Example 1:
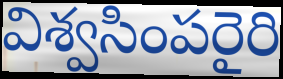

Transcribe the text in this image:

విశ్వసింపరైరి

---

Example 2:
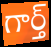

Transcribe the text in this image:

గార్త్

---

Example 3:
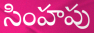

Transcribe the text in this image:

సింహపు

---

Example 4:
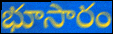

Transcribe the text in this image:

భూసారం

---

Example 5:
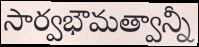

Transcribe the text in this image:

సార్వభౌమత్వాన్నీ